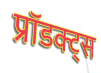
प्रॉडक्ट्स